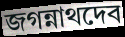
জগন্নাথদেব